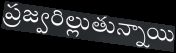
ప్రజ్వరిల్లుతున్నాయి